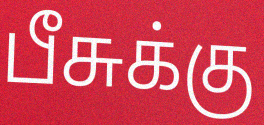
பீசுக்கு